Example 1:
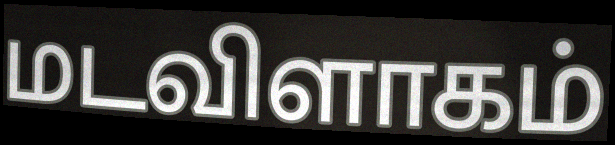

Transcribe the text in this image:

மடவிளாகம்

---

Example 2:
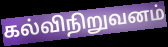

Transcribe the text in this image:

கல்விநிறுவனம்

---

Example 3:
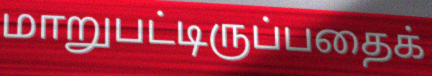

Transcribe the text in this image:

மாறுபட்டிருப்பதைக்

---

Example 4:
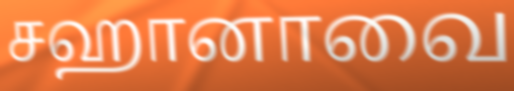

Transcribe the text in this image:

சஹானாவை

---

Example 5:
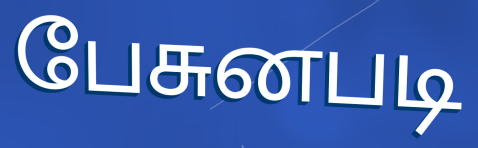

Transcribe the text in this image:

பேசுனபடி